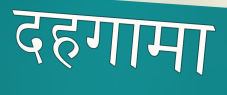
दहगामा